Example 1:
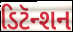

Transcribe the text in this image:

ડિટૅન્શન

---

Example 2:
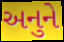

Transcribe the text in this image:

અનુને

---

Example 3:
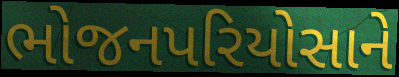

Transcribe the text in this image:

ભોજનપરિયોસાને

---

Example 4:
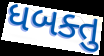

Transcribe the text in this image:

ધબક્તુ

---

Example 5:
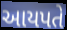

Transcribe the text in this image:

આયપતે